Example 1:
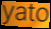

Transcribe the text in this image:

yato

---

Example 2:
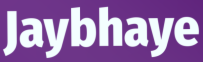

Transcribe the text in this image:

Jaybhaye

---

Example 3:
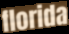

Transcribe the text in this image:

florida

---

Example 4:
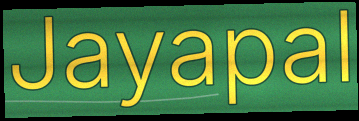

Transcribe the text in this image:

Jayapal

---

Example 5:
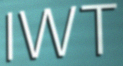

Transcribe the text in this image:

IWT